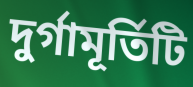
দুর্গামূর্তিটি